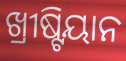
ଖ୍ରୀଷ୍ଟିୟାନ